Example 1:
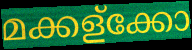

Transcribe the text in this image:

മക്കള്ക്കോ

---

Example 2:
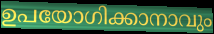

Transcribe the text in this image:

ഉപയോഗിക്കാനാവും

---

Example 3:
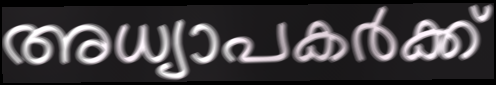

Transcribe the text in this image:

അധ്യാപകർക്ക്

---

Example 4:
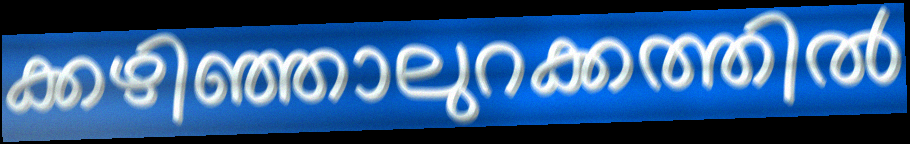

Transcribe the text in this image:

ക്കഴിഞ്ഞാലുറക്കത്തിൽ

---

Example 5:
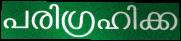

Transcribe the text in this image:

പരിഗ്രഹിക്ക